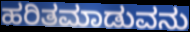
ಹರಿತಮಾಡುವನು